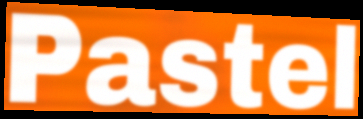
Pastel